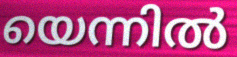
യെന്നിൽ